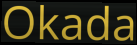
Okada